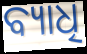
ବ୍ୟାଧି